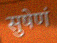
सुषेणं